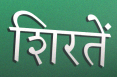
शिरतें